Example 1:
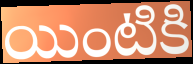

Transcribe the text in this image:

యింటికి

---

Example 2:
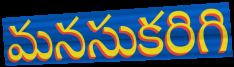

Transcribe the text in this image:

మనసుకరిగి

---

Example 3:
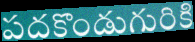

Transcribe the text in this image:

పదకొండుగురికి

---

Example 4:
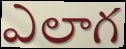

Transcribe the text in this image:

ఎలాగ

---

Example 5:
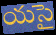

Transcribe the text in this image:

యసై